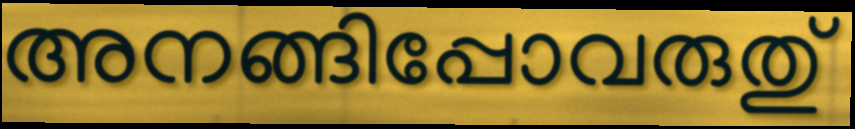
അനങ്ങിപ്പോവരുതു്